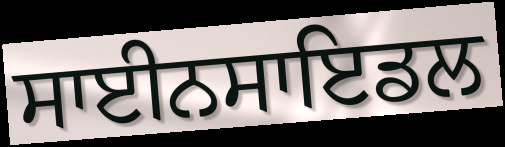
ਸਾਈਨਸਾਇਡਲ